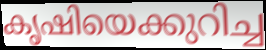
കൃഷിയെക്കുറിച്ച